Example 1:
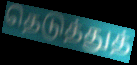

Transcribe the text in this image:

தெடுத்துத்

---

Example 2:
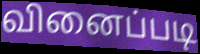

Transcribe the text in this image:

வினைப்படி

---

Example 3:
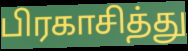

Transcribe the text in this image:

பிரகாசித்து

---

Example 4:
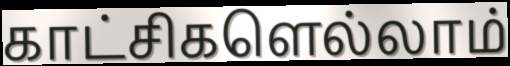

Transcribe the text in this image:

காட்சிகளெல்லாம்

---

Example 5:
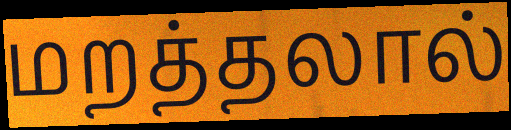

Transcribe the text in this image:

மறத்தலால்